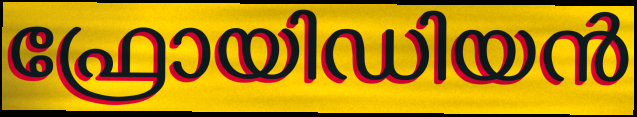
ഫ്രോയിഡിയൻ